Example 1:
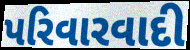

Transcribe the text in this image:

પરિવારવાદી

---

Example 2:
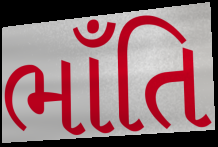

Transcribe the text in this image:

ભાઁતિ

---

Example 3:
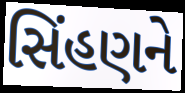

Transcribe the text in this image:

સિંહણને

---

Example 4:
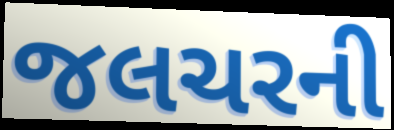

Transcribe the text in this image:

જલચરની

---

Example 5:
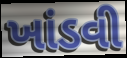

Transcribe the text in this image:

ખાંડવી